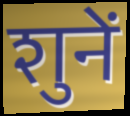
शुनें